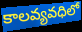
కాలవ్యవధిలో